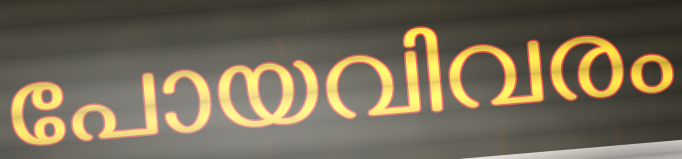
പോയവിവരം